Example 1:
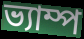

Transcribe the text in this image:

ভ্যাম্প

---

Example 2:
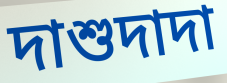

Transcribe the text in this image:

দাশুদাদা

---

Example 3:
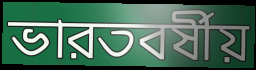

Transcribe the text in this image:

ভারতবর্ষীয়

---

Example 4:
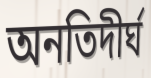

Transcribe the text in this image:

অনতিদীর্ঘ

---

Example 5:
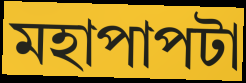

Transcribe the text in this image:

মহাপাপটা